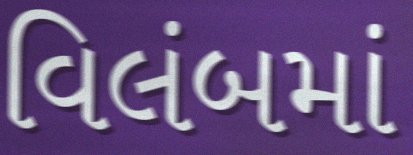
વિલંબમાં